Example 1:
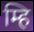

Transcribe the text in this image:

म्हि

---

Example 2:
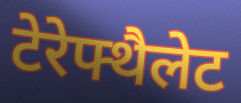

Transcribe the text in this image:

टेरेफ्थैलेट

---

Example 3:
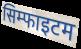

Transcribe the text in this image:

सिम्फाइटम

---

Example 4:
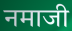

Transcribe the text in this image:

नमाजी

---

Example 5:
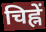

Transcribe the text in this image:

चिह्नें